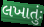
લખાતુંઃ